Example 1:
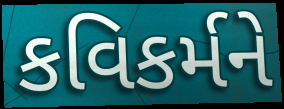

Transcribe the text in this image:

કવિકર્મને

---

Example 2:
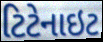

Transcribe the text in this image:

ટિટેનાઇટ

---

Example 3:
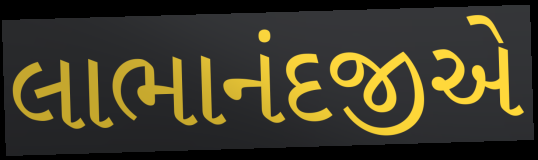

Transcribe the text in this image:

લાભાનંદજીએ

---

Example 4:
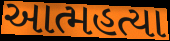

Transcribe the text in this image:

આત્મહત્યા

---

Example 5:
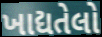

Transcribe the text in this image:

ખાદ્યતેલો